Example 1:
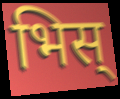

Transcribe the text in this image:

भिस्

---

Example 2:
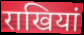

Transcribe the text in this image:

राखियां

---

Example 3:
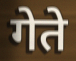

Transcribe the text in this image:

गेते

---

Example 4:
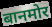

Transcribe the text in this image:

बानमोर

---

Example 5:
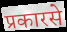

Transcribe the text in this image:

प्रकारसे